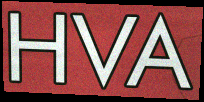
HVA